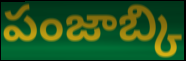
పంజాబ్కి